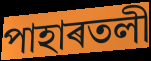
পাহাৰতলী